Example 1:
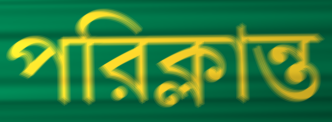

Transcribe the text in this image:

পরিক্লান্ত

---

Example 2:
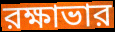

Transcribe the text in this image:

রক্ষাভার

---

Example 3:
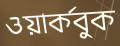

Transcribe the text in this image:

ওয়ার্কবুক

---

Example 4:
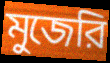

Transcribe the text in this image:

মুজেরি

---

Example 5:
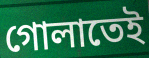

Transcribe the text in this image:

গোলাতেই